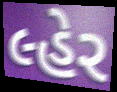
લ્હેર